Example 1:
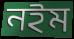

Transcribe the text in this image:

নইম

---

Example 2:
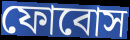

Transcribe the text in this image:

ফোবোস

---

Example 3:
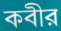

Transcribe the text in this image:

কবীর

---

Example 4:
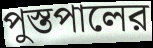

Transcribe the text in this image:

পুস্তপালের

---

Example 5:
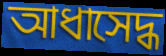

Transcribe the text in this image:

আধাসেদ্ধ